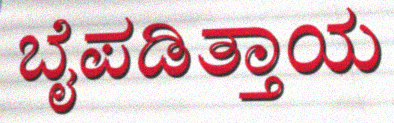
ಬೈಪಡಿತ್ತಾಯ